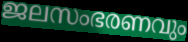
ജലസംഭരണവും